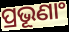
ପ୍ରଭୂଣାଂ